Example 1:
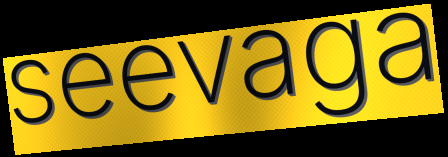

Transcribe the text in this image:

seevaga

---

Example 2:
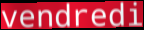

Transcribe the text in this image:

vendredi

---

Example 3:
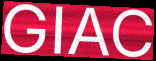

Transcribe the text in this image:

GIAC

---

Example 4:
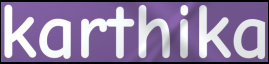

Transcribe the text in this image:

karthika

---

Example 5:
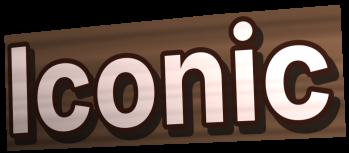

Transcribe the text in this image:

Iconic